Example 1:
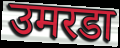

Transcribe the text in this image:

उमरडा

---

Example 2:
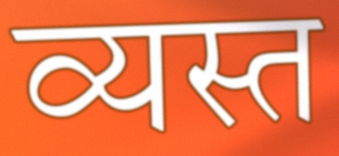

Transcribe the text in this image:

व्यस्त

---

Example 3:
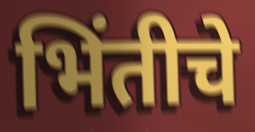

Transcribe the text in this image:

भिंतीचे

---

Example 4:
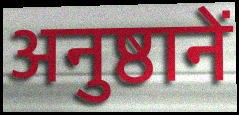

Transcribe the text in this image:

अनुष्ठानें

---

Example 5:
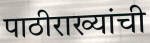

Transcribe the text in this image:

पाठीराख्यांची